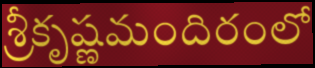
శ్రీకృష్ణమందిరంలో